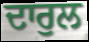
ਦਾਰੁਲ